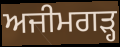
ਅਜੀਮਗੜ੍ਹ